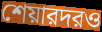
শেয়ারদরও